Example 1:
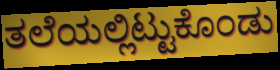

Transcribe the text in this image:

ತಲೆಯಲ್ಲಿಟ್ಟುಕೊಂಡು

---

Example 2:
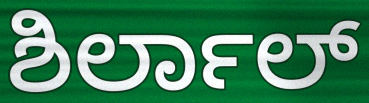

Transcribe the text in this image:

ಶಿರ್ಲಾಲ್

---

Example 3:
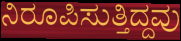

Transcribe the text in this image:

ನಿರೂಪಿಸುತ್ತಿದ್ದವು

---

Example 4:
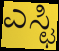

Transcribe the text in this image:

ಎಸ್ಟಿ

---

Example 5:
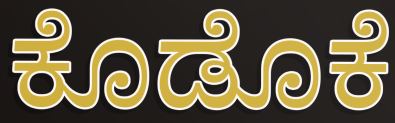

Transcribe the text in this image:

ಕೊಡೊಕೆ